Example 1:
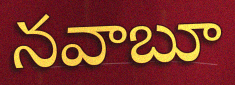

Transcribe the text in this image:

నవాబూ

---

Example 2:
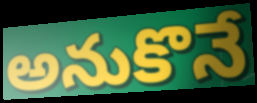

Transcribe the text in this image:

అనుకొనే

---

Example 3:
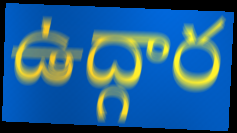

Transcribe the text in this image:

ఉద్గార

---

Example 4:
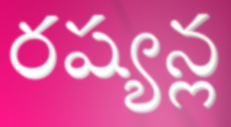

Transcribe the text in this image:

రష్యన్ల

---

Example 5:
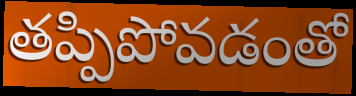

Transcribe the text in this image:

తప్పిపోవడంతో